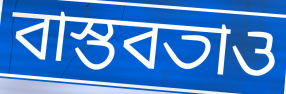
বাস্তবতাও